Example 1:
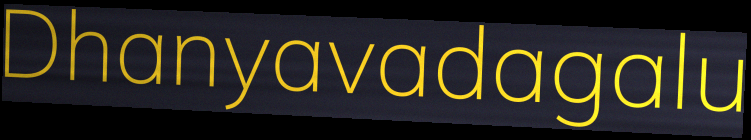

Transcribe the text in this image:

Dhanyavadagalu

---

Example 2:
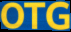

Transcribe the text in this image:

OTG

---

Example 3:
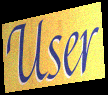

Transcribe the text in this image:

User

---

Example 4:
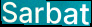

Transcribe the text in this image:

Sarbat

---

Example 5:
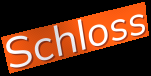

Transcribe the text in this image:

Schloss